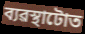
ব্যৱস্থাটোত